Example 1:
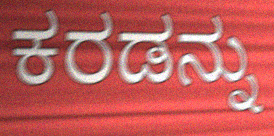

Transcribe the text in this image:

ಕರಡನ್ನು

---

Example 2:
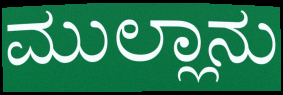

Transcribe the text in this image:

ಮುಲ್ಲಾನು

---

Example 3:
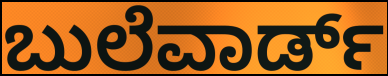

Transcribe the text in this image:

ಬುಲೆವಾರ್ಡ್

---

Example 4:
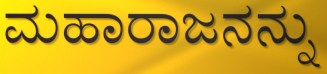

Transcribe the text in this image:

ಮಹಾರಾಜನನ್ನು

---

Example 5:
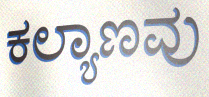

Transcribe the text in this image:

ಕಲ್ಯಾಣವು